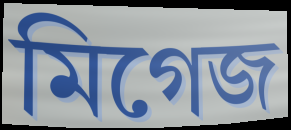
মিগেজ